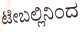
ಟೇಬಲ್ಲಿನಿಂದ